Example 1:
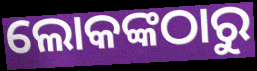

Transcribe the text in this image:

ଲୋକଙ୍କଠାରୁ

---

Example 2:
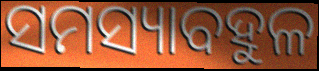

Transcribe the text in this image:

ସମସ୍ୟାବହୁଳ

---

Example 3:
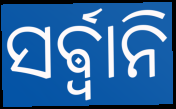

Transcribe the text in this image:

ସର୍ଵ୍ଵାନି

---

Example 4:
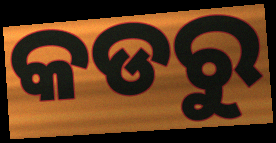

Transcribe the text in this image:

କଡରୁ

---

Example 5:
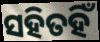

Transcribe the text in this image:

ସହିତହିଁ